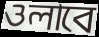
ওলাবে